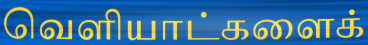
வெளியாட்களைக்